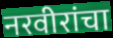
नरवीरांचा